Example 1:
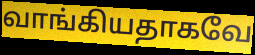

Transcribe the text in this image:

வாங்கியதாகவே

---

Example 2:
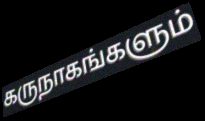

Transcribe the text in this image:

கருநாகங்களும்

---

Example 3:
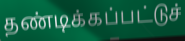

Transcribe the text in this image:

தண்டிக்கப்பட்டுச்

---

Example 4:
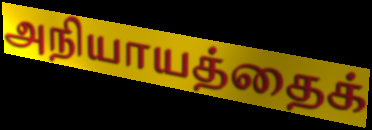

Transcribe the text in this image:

அநியாயத்தைக்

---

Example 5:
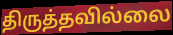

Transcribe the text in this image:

திருத்தவில்லை